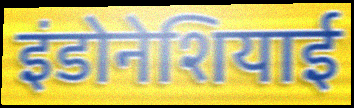
इंडोनेशियाई